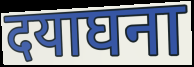
दयाघना